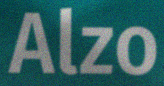
Alzo